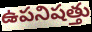
ఉపనిషత్తు